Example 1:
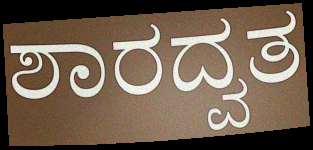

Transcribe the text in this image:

ಶಾರದ್ವತ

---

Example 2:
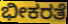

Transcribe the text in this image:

ಭೀಕರತೆ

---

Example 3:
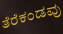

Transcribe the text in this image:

ತೆರೆಕಂಡವು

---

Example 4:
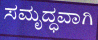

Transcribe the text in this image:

ಸಮೃದ್ಧವಾಗಿ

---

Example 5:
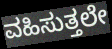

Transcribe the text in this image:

ವಹಿಸುತ್ತಲೇ